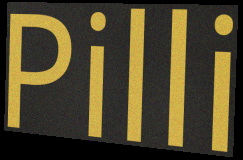
Pilli